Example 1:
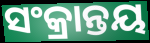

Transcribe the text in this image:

ସଂକ୍ରାନ୍ତୟ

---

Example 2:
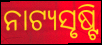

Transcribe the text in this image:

ନାଟ୍ୟସୃଷ୍ଟି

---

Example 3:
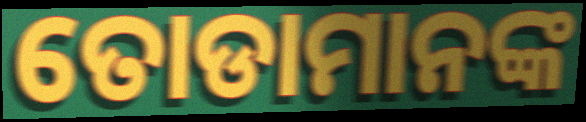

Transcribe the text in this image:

ତୋଡାମାନଙ୍କ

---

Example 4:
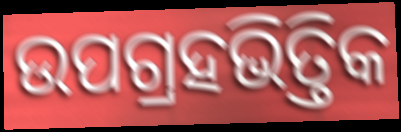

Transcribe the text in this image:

ଉପଗ୍ରହଭିତ୍ତିକ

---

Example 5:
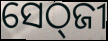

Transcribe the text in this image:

ସେଠ୍‌ଜୀ